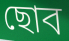
ছোব